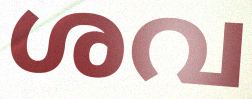
ശവ